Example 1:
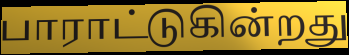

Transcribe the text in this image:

பாராட்டுகின்றது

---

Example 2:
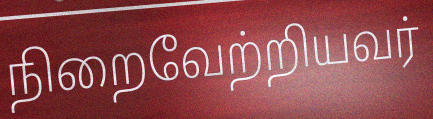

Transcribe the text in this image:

நிறைவேற்றியவர்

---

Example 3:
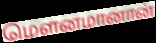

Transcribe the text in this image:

மௌனமானான்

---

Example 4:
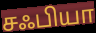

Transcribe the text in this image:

சஃபியா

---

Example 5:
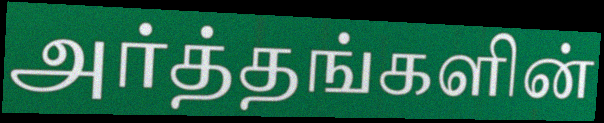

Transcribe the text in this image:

அர்த்தங்களின்